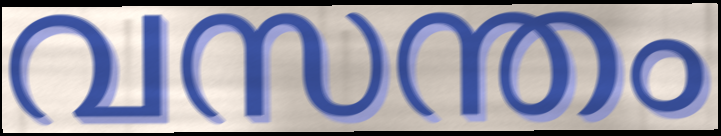
വസന്തം